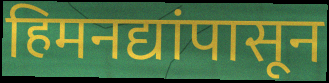
हिमनद्यांपासून